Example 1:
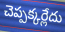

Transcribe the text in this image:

చెప్పక్కర్లేదు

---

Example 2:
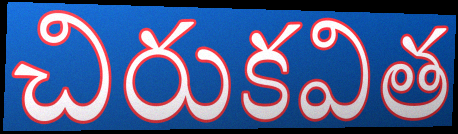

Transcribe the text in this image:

చిరుకవిత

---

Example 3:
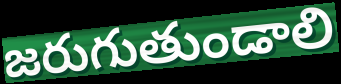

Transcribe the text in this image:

జరుగుతుండాలి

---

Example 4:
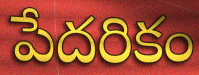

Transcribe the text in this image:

పేదరికం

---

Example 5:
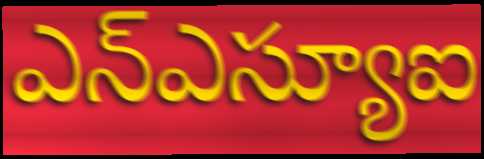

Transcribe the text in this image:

ఎన్ఎస్యూఐ